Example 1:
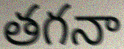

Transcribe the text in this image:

తగనా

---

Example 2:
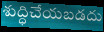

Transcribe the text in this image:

శుద్ధిచేయబడదు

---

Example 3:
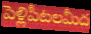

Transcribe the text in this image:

పెళ్లిపీటలమీద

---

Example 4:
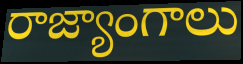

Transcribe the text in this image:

రాజ్యాంగాలు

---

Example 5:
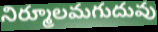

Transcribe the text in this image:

నిర్మూలమగుదువు